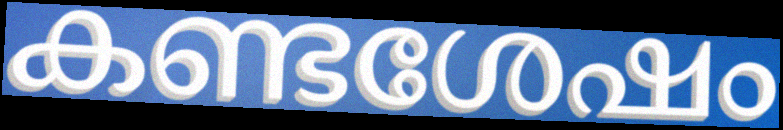
കണ്ടശേഷം